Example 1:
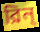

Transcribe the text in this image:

রিন্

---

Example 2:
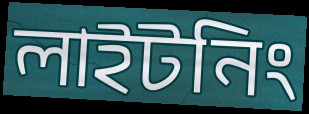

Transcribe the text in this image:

লাইটনিং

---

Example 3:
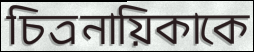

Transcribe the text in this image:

চিত্রনায়িকাকে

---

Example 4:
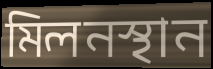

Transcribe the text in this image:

মিলনস্থান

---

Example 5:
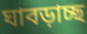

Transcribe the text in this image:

ঘাবড়াচ্ছ